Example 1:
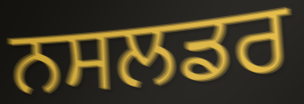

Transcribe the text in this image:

ਨਸਲਡਰ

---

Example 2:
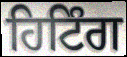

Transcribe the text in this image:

ਹਿਟਿੰਗ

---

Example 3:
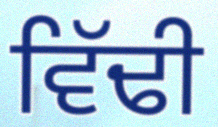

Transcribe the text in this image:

ਵਿੱਢੀ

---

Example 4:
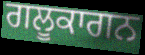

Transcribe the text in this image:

ਗਲੂਕਾਗਨ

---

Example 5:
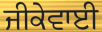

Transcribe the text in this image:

ਜੀਕੇਵਾਈ